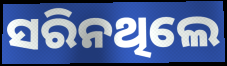
ସରିନଥିଲେ